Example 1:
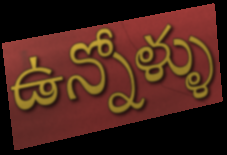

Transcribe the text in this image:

ఉన్నోళ్ళు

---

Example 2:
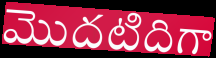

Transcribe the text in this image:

మొదటిదిగా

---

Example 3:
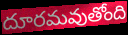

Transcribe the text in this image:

దూరమవుతోంది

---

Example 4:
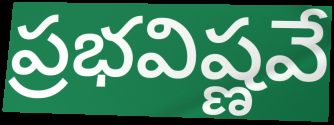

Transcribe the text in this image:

ప్రభవిష్ణవే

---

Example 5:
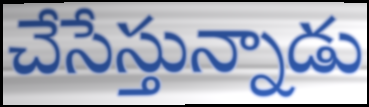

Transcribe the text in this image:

చేసేస్తున్నాడు